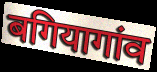
बगियागांव